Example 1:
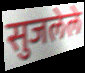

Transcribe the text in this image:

सुजलेले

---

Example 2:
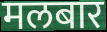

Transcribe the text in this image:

मलबार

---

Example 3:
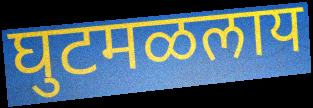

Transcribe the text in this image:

घुटमळलाय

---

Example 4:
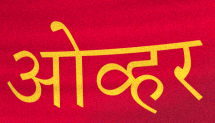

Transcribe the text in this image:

ओव्हर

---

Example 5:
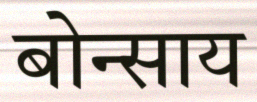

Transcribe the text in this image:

बोन्साय